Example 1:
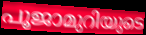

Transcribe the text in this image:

പൂജാമുറിയുടെ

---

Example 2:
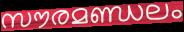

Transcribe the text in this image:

സൗരമണ്ഡലം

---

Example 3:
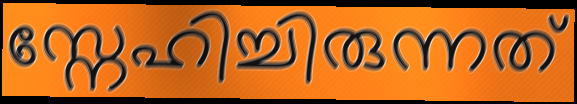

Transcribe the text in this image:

സ്നേഹിച്ചിരുന്നത്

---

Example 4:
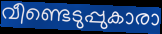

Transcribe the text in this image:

വീണ്ടെടുപ്പുകാരാ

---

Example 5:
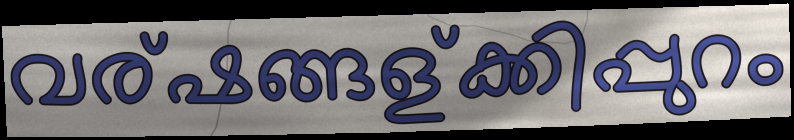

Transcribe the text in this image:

വര്ഷങ്ങള്ക്കിപ്പുറം